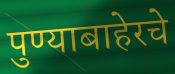
पुण्याबाहेरचे